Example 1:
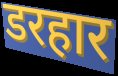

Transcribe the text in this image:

डरहार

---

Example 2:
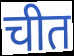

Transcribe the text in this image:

चीत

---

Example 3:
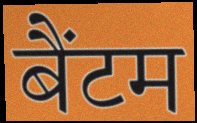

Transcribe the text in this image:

बैंटम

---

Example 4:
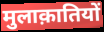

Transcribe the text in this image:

मुलाक़ातियों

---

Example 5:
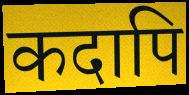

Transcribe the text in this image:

कदापि